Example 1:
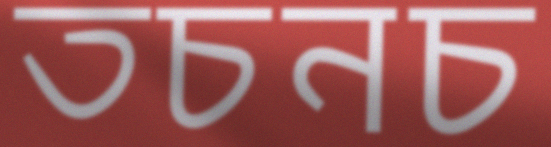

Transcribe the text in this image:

তচনচ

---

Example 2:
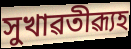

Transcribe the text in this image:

সুখাৱতীৱ্যূহ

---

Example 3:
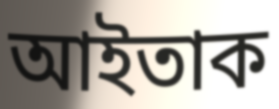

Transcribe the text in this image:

আইতাক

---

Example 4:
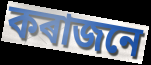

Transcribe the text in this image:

কৰাজনে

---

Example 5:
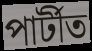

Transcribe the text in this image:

পাৰ্টীত